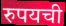
रुपयची